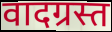
वादग्रस्त